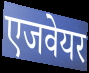
एजवेयर